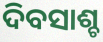
ଦିବସାଶ୍ଚ